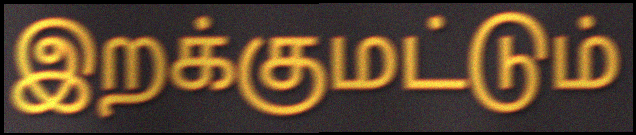
இறக்குமட்டும்